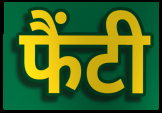
फैंटी